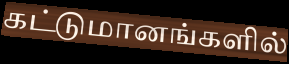
கட்டுமானங்களில்